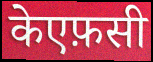
केएफ़सी